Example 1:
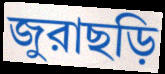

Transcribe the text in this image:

জুরাছড়ি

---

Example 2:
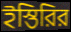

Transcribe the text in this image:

ইস্তিরির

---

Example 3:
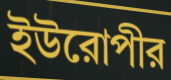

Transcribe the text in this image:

ইউরোপীর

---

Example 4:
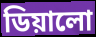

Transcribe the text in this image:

ডিয়ালো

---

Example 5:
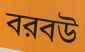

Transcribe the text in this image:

বরবউ